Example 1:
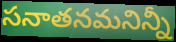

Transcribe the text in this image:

సనాతనమనిన్నీ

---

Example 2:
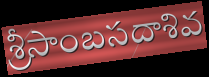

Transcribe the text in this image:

శ్రీసాంబసదాశివ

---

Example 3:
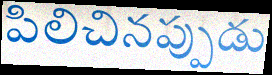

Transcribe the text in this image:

పిలిచినప్పుడు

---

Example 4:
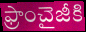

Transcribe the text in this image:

ఫ్రాంచైజీకి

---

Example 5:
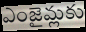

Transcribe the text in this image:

ఎంజైమ్లకు